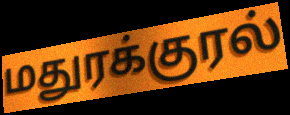
மதுரக்குரல்